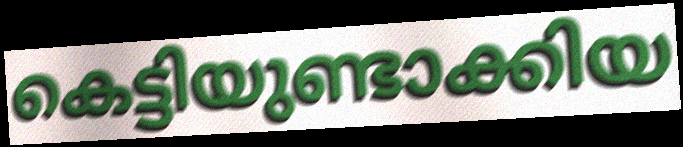
കെട്ടിയുണ്ടാക്കിയ